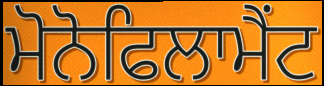
ਮੋਨੋਫਿਲਾਮੈਂਟ